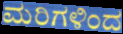
ಮರಿಗಳಿಂದ